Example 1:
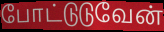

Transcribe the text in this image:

போட்டுடுவேன்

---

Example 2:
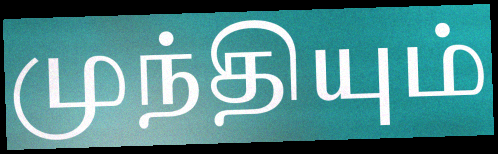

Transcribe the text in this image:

முந்தியும்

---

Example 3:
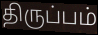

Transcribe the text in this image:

திருப்பம்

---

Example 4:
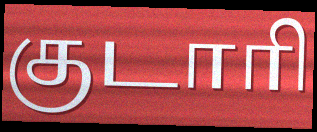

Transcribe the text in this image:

குடாரி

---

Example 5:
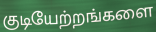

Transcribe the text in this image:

குடியேற்றங்களை